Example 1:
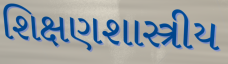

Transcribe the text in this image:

શિક્ષણશાસ્ત્રીય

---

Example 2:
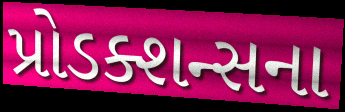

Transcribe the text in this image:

પ્રોડક્શન્સના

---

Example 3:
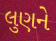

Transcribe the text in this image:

લુણને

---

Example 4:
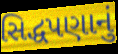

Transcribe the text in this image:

સિદ્ધપણાનું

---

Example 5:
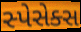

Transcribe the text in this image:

સ્પેસેક્સ